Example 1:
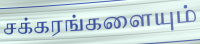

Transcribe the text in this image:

சக்கரங்களையும்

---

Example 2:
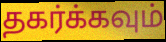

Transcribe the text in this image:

தகர்க்கவும்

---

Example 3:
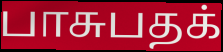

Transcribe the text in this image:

பாசுபதக்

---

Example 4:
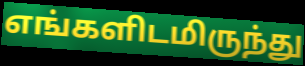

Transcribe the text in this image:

எங்களிடமிருந்து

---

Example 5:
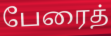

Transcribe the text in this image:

பேரைத்